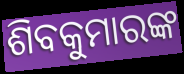
ଶିବକୁମାରଙ୍କ